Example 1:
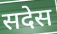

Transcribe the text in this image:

सदेस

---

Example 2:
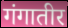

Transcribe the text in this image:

गंगातीर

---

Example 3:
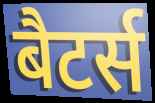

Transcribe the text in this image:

बैटर्स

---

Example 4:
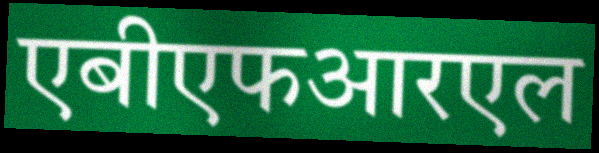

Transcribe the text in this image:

एबीएफआरएल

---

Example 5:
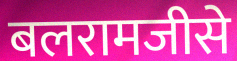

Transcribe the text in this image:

बलरामजीसे